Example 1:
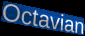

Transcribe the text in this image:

Octavian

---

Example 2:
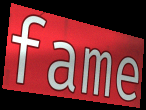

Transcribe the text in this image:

fame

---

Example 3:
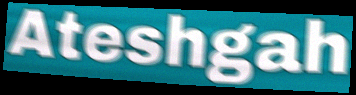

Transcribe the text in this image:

Ateshgah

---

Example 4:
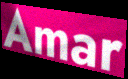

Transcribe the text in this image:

Amar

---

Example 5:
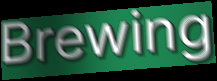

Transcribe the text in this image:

Brewing